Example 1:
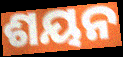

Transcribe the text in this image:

ଶୟନ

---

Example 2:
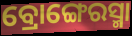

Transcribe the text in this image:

ବ୍ରୋଙ୍ଗେରସ୍ମା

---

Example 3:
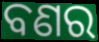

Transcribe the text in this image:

ବଣର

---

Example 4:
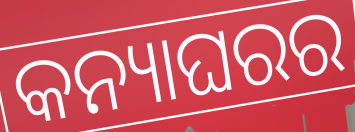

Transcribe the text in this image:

କନ୍ୟାଘରର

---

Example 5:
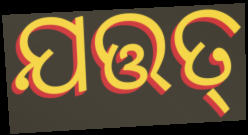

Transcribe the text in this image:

ଯତ୍ତତ୍